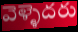
వెళ్ళెదరు